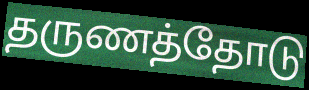
தருணத்தோடு